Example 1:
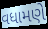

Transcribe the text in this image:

વધામણે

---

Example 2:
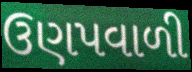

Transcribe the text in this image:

ઉણપવાળી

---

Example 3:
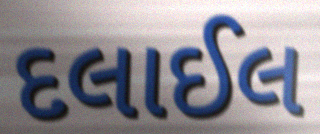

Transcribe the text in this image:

દલાઈલ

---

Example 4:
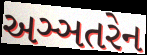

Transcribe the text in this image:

અઞ્ઞતરેન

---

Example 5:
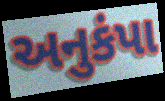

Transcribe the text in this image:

અનુકંપા